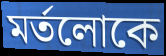
মর্তলোকে